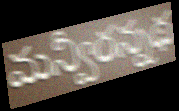
మన్వీరన్నథ